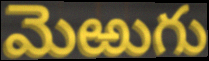
మెఱుగు